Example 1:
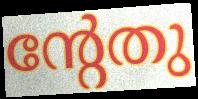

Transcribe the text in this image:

ന്റേതു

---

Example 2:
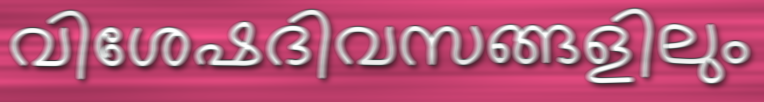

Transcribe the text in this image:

വിശേഷദിവസങ്ങളിലും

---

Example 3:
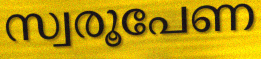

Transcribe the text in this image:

സ്വരൂപേണ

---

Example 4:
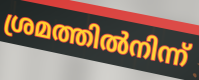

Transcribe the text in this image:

ശ്രമത്തിൽനിന്ന്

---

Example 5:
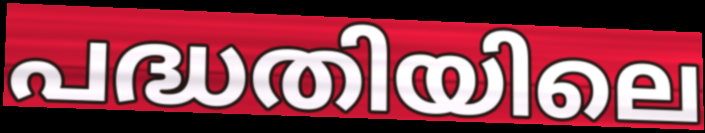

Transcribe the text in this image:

പദ്ധതിയിലെ